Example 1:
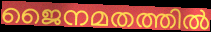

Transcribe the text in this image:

ജൈനമതത്തിൽ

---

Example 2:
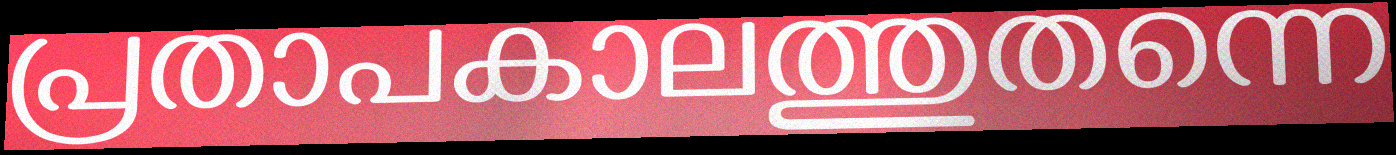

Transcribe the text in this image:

പ്രതാപകാലത്തുതന്നെ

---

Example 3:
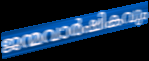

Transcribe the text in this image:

ജന്മവാർഷികവും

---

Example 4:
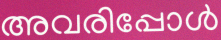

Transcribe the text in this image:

അവരിപ്പോൾ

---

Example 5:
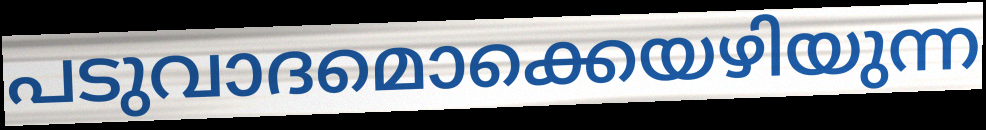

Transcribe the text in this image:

പടുവാദമൊക്കെയഴിയുന്ന